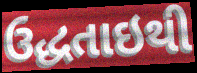
ઉદ્ધતાઇથી